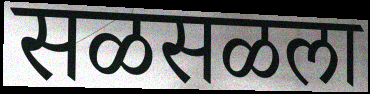
सळसळला